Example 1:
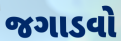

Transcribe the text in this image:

જગાડવો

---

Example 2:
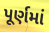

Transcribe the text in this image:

પૂર્ણમાં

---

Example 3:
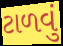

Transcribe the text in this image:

ટાળવું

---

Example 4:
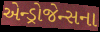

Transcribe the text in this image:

એન્ડ્રોજેન્સના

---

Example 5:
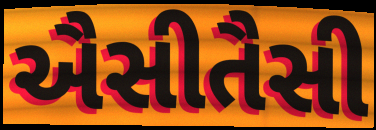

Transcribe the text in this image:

ઐસીતૈસી